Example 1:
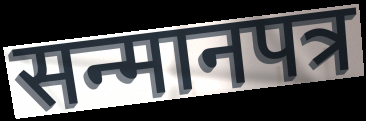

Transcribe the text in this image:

सन्मानपत्र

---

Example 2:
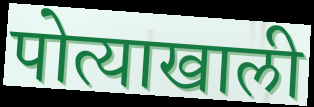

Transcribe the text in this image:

पोत्याखाली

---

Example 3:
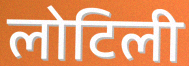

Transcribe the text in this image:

लोटिली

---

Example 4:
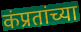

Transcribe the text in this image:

कंप्रतांच्या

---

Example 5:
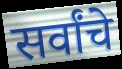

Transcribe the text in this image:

सर्वांचे